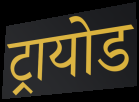
ट्रायोड